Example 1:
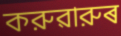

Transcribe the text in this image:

কৰুৱাৰুৰ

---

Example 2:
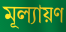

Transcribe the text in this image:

মূল্যায়ণ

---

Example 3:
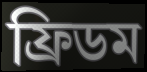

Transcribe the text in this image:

ফ্ৰিডম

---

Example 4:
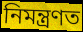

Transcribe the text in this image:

নিমন্ত্ৰণত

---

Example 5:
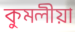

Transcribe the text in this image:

কুমলীয়া